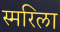
स्मरिला